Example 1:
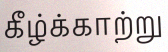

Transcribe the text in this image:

கீழ்க்காற்று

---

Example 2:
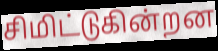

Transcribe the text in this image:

சிமிட்டுகின்றன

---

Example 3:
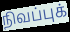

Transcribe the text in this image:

நிவப்புக்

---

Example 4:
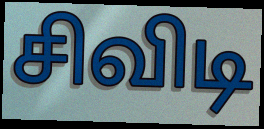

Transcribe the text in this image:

சிவிடி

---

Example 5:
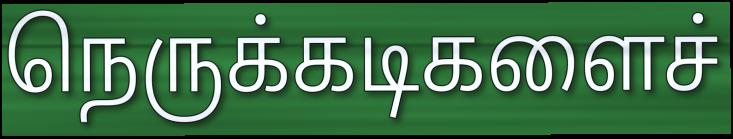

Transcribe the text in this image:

நெருக்கடிகளைச்